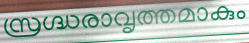
സ്രഗ്ദ്ധരാവൃത്തമാകും